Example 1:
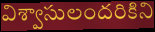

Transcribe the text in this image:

విశ్వాసులందరికిని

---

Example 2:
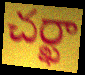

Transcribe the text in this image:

చర్ఖా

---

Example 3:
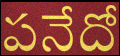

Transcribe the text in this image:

పనేదో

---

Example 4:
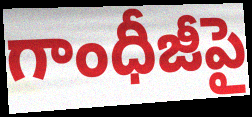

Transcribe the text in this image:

గాంధీజీపై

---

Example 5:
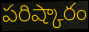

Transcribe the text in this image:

పరిష్కారం